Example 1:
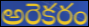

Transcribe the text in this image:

అరెకరం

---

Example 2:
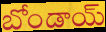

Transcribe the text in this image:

బోండాయ్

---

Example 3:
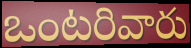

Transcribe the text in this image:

ఒంటరివారు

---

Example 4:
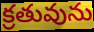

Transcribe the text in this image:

క్రతువును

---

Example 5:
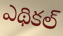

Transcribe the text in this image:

ఎథికల్